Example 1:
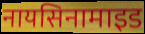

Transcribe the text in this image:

नायसिनामाइड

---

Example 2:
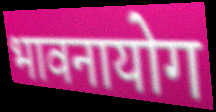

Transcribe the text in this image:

भावनायोग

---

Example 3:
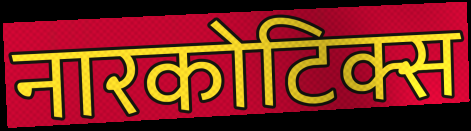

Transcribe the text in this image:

नारकोटिक्स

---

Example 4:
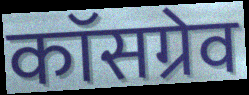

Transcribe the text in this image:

कॉसग्रेव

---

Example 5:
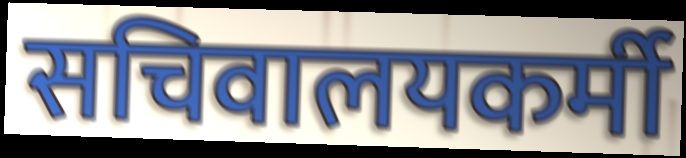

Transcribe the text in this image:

सचिवालयकर्मी